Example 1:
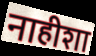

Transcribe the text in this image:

नाहीशा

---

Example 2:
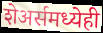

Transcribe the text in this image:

शेअर्समध्येही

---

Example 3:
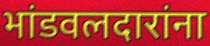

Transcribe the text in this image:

भांडवलदारांना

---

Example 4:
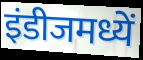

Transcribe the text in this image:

इंडीजमध्यें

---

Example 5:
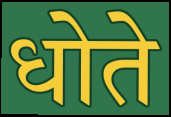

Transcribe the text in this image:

धोते